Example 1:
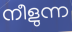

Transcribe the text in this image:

നീളുന്ന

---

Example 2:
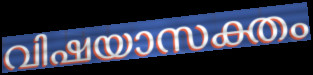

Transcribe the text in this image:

വിഷയാസക്തം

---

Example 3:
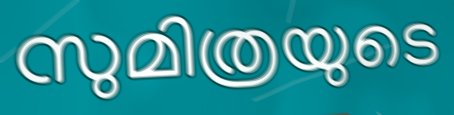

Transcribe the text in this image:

സുമിത്രയുടെ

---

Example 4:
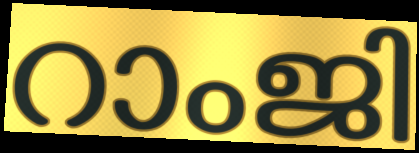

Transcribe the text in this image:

റാംജി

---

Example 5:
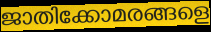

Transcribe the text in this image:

ജാതിക്കോമരങ്ങളെ